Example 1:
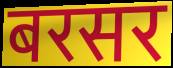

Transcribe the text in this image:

बरसर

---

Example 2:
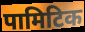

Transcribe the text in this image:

पामिटिक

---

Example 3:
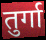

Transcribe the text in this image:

तुर्गा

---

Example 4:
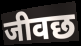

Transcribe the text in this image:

जीवछ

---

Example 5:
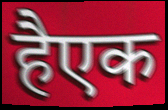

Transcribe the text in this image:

हैएक